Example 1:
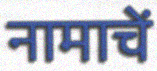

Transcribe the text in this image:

नामाचें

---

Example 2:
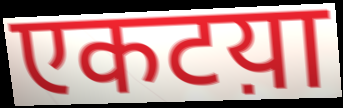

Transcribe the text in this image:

एकटय़ा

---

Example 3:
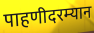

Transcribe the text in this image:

पाहणीदरम्यान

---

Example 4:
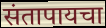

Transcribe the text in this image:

संतापायचा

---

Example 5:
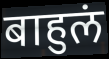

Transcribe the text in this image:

बाहुलं